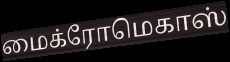
மைக்ரோமெகாஸ்